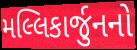
મલ્લિકાર્જુનનો